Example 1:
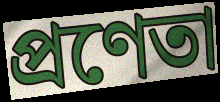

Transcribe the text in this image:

প্রণেতা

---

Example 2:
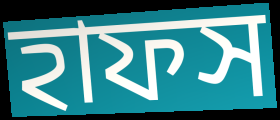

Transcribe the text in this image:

হাফস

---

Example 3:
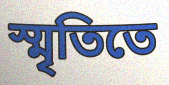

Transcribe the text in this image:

স্মৃতিতে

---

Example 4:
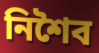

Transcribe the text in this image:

নিশৈব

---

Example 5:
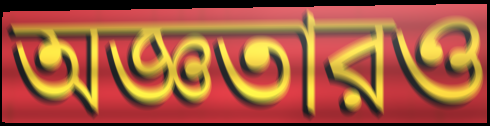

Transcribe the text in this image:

অজ্ঞতারও